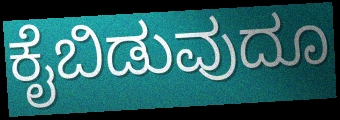
ಕೈಬಿಡುವುದೂ